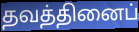
தவத்தினைப்